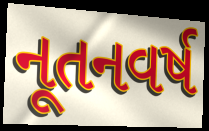
નૂતનવર્ષ